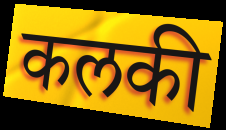
कलकी